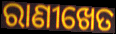
ରାଣୀଖେତ